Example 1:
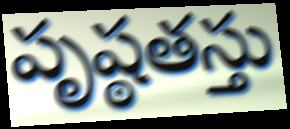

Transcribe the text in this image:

పృష్ఠతస్తు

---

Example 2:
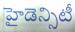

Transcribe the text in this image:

హైడెన్సిటీ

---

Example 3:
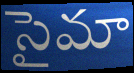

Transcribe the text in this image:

సైమా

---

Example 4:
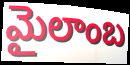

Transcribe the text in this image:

మైలాంబ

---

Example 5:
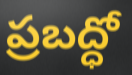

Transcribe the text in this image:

ప్రబద్ధో